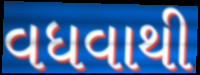
વધવાથી